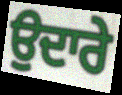
ਉਦਾਰੇ